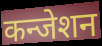
कन्जेशन